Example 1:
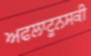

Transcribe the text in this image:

ਅਫਲਾਟੂਨਸਕੀ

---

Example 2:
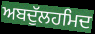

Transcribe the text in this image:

ਅਬਦੁੱਲਹਮਿਦ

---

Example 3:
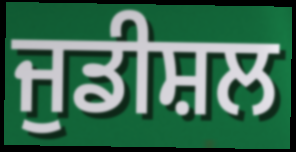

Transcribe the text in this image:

ਜੁਡੀਸ਼ਲ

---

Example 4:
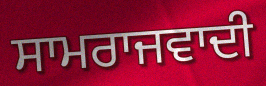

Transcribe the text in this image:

ਸਾਮਰਾਜਵਾਦੀ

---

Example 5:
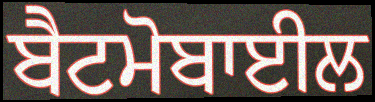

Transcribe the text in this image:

ਬੈਟਮੋਬਾਈਲ